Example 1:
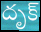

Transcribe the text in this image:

దృక్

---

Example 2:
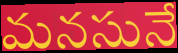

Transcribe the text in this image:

మనసునే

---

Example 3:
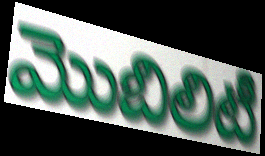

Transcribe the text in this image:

మొబిలిటీ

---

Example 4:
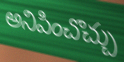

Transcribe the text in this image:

అనిపించొచ్చు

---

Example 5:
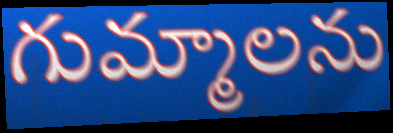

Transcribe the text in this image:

గుమ్మాలను